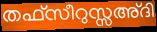
തഫ്സീറുസ്സഅ്ദി